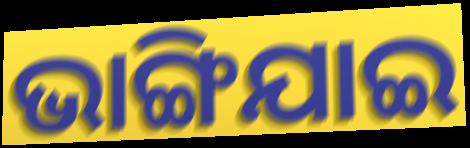
ଭାଙ୍ଗିଯାଇ